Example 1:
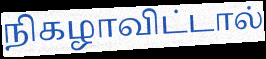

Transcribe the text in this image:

நிகழாவிட்டால்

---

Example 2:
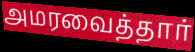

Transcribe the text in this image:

அமரவைத்தார்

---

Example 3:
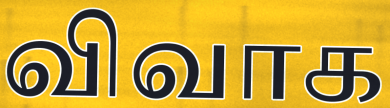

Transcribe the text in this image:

விவாக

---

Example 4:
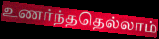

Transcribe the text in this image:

உணர்ந்ததெல்லாம்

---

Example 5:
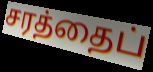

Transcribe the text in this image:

சரத்தைப்